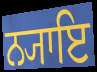
ਨ੍ਯਾਇ